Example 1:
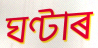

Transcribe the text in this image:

ঘণ্টাৰ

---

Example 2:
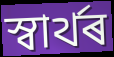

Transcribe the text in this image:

স্বাৰ্থৰ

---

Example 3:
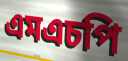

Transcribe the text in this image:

এমএচপি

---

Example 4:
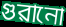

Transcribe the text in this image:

গুৱানো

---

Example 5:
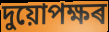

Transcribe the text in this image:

দুয়োপক্ষৰ